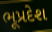
ભૂપ્રદેશ